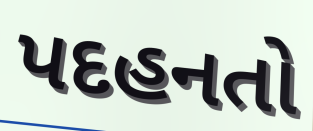
પદહનતો